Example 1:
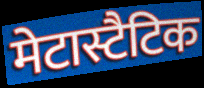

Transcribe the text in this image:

मेटास्टैटिक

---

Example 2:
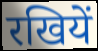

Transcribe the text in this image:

रखियें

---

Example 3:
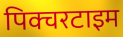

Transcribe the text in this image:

पिक्चरटाइम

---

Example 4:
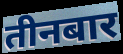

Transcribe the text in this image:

तीनबार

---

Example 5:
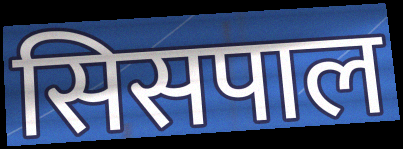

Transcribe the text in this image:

सिसपाल